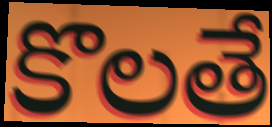
కొలతే